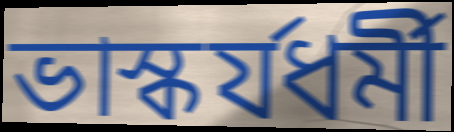
ভাস্কর্যধর্মী